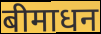
बीमाधन